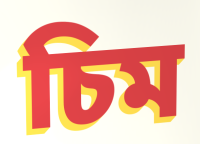
চিম